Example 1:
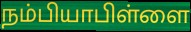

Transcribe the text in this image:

நம்பியாபிள்ளை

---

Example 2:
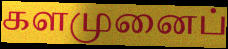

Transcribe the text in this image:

களமுனைப்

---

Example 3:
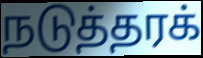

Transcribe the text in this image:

நடுத்தரக்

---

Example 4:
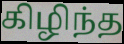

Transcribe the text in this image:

கிழிந்த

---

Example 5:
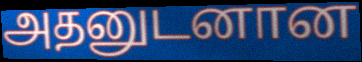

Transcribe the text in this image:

அதனுடனான